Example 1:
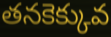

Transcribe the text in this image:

తనకెక్కువ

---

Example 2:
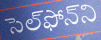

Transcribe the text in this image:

సెల్‌ఫోన్‌ని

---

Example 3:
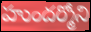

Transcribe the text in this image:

హుందర్మోని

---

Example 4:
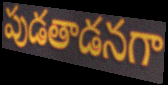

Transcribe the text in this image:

పుడతాడనగా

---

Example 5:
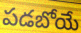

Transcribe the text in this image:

పడబోయే